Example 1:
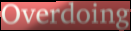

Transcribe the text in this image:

Overdoing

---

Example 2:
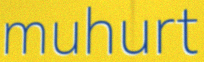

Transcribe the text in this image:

muhurt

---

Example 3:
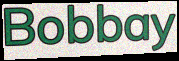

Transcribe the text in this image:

Bobbay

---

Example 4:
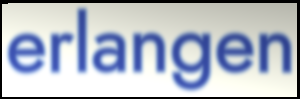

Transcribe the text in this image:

erlangen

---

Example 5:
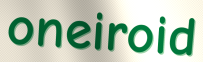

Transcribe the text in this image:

oneiroid